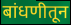
बांधणीतून